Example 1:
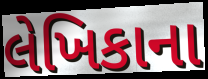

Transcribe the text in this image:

લેખિકાના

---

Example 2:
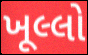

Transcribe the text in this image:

ખૂલ્લો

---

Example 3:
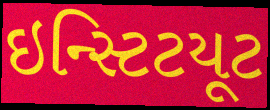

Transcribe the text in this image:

ઇન્સ્ટિટયૂટ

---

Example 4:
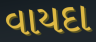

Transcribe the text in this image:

વાયદા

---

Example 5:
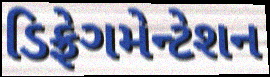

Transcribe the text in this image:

ડિફ્રેગમેન્ટેશન